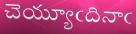
చెయ్యూఁదినాఁ